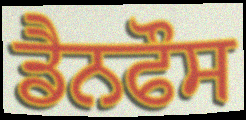
ਡੈਨਫੌਸ